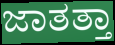
ಜಾತತ್ತಾ